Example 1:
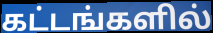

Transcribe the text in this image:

கட்டங்களில்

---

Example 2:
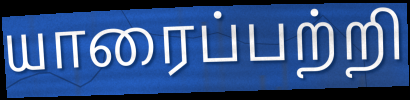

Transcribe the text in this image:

யாரைப்பற்றி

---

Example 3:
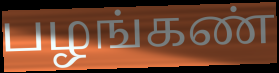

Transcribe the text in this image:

பழங்கண்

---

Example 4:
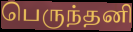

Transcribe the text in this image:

பெருந்தனி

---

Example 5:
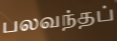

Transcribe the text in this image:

பலவந்தப்